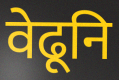
वेढूनि